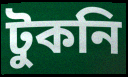
টুকনি